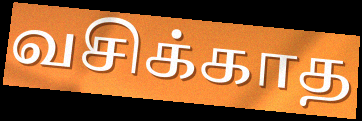
வசிக்காத